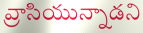
వ్రాసియున్నాడని